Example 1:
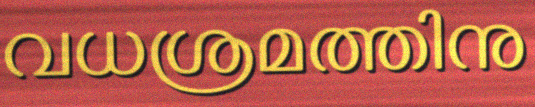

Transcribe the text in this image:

വധശ്രമത്തിനു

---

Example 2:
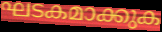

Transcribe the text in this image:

ഘടകമാക്കുക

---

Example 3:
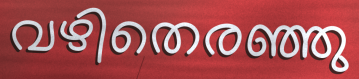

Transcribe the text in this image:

വഴിതെരഞ്ഞു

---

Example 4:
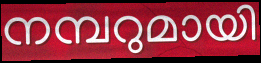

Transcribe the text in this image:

നമ്പറുമായി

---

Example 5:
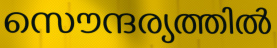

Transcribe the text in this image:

സൌന്ദര്യത്തിൽ